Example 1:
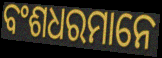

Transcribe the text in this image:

ବଂଶଧରମାନେ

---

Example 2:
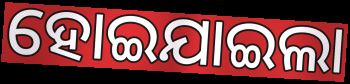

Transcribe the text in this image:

ହୋଇଯାଇଲା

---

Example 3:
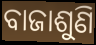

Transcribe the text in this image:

ବାଜାଶୁଣି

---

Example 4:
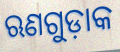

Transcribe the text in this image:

ଋଣଗୁଡ଼ାକ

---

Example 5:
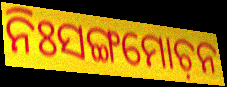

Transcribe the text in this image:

ନିଃସଙ୍ଗମୋଚ଼ନ